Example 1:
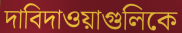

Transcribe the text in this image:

দাবিদাওয়াগুলিকে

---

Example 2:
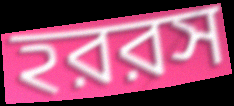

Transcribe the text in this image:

হররস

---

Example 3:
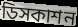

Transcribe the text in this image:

ডিসকাশন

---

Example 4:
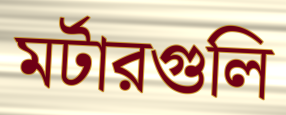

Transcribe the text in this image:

মর্টারগুলি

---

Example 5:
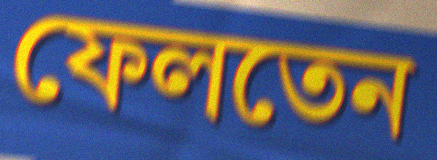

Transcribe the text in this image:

ফেলতেন